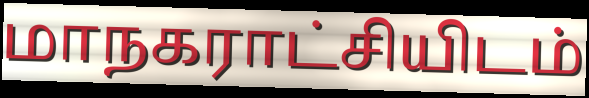
மாநகராட்சியிடம்